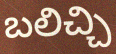
బలిచ్చి